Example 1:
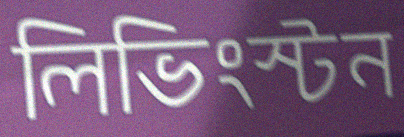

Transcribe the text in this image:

লিভিংস্টন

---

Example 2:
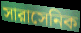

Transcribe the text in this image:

সারাসেনিক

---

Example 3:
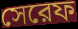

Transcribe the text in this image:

সেরেফ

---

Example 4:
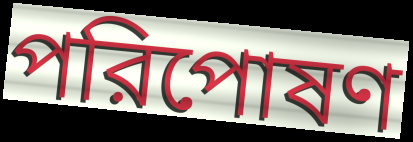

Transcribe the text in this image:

পরিপোষণ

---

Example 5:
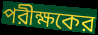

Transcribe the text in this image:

পরীক্ষকের